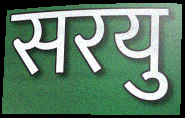
सरयु